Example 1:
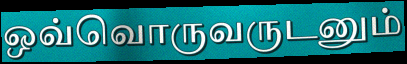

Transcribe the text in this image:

ஒவ்வொருவருடனும்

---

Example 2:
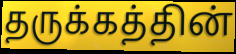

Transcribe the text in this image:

தருக்கத்தின்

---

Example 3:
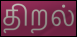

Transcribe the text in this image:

திறல்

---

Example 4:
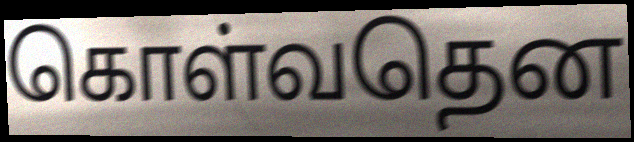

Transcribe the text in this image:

கொள்வதென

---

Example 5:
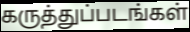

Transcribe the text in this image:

கருத்துப்படங்கள்